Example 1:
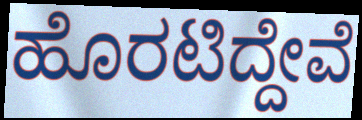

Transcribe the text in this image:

ಹೊರಟಿದ್ದೇವೆ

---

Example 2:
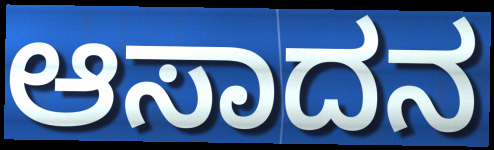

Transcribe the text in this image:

ಆಸಾದನ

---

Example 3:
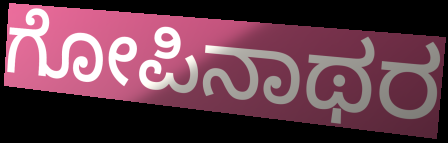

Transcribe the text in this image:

ಗೋಪಿನಾಥರ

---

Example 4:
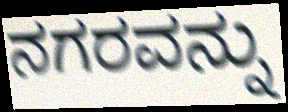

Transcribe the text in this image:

ನಗರವನ್ನು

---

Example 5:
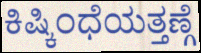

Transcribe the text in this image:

ಕಿಷ್ಕಿಂಧೆಯತ್ತಣ್ಗೆ